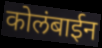
कोलंबाईन